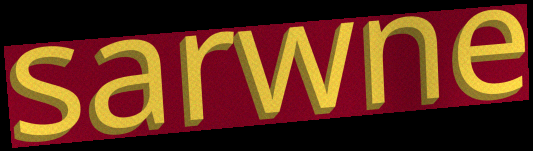
sarwne